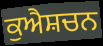
ਕੁਐਸ਼ਚਨ